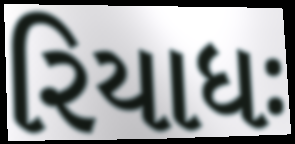
રિયાધઃ